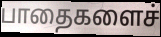
பாதைகளைச்